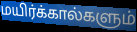
மயிர்க்கால்களும்